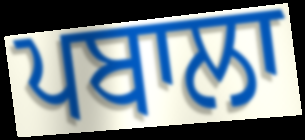
ਪਬਾਲਾ